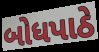
બોધપાઠે